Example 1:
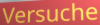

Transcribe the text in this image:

Versuche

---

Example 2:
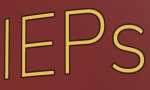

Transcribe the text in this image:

IEPs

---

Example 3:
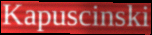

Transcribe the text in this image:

Kapuscinski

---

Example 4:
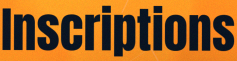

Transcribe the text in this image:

Inscriptions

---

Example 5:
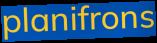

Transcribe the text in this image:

planifrons